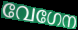
വേഗേന